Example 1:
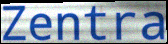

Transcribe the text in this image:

Zentra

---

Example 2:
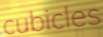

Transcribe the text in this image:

cubicles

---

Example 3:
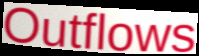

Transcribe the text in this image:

Outflows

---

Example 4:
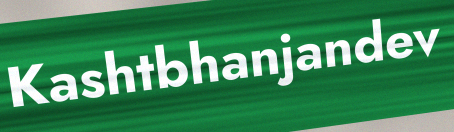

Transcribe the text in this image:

Kashtbhanjandev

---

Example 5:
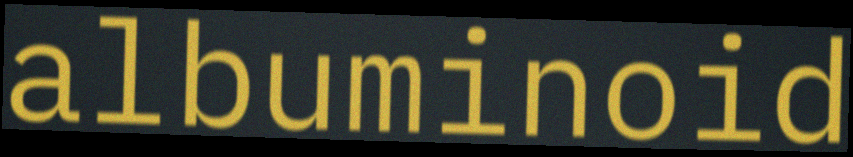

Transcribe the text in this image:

albuminoid